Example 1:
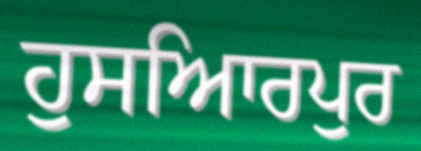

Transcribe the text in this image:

ਹੁਸਆਿਰਪੁਰ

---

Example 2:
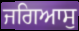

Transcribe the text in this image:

ਜਗਿਆਸੁ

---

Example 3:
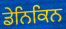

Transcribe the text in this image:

ਡੇਨਿਕਿਨ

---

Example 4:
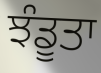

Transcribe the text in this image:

ਝੰਡੂਤਾ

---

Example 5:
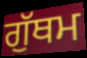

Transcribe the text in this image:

ਗੁੱਥਮ